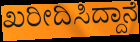
ಖರೀದಿಸಿದ್ದಾನೆ